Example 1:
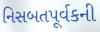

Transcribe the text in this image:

નિસબતપૂર્વકની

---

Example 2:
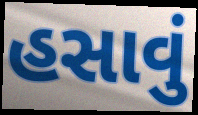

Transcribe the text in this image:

હસાવું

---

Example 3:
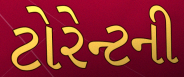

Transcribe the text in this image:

ટોરેન્ટની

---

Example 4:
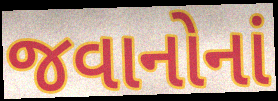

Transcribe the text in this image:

જવાનોનાં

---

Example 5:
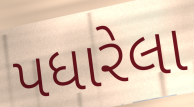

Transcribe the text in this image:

પધારેલા